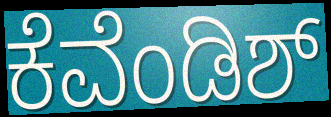
ಕೆವೆಂಡಿಶ್